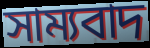
সাম্যবাদ